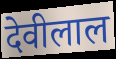
देवीलाल